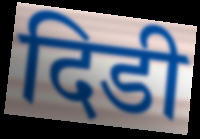
दिडी